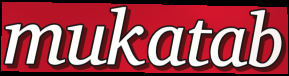
mukatab